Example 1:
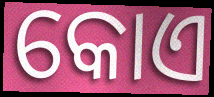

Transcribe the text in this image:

କୋଏ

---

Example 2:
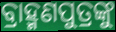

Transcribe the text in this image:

ବ୍ରାହ୍ମଣପୁତ୍ରଙ୍କୁ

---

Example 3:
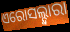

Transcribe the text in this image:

ଏରୋସଲ୍ଦ୍ୱାରା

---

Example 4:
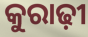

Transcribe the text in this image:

କୁରାଢ଼ୀ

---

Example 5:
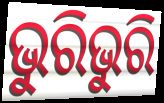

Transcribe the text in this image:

ଭୁରିଭୁରି